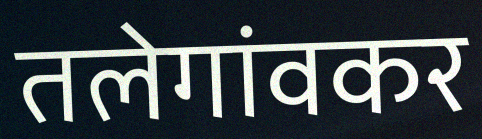
तलेगांवकर